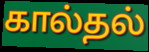
கால்தல்